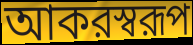
আকরস্বরূপ